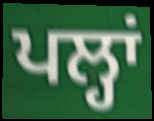
ਪਲ੍ਹਾਂ